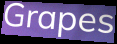
Grapes